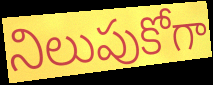
నిలుపుకోగా